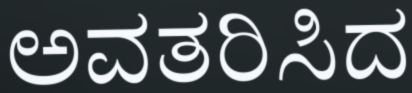
ಅವತರಿಸಿದ